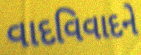
વાદવિવાદને